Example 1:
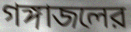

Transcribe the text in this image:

গঙ্গাজলের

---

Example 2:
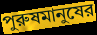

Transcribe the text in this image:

পুরুষমানুষের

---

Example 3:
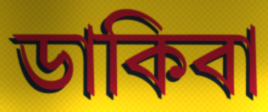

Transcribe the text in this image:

ডাকিবা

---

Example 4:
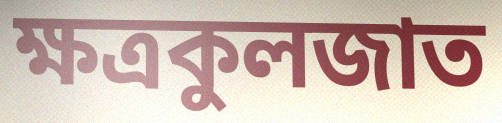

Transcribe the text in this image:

ক্ষত্রকুলজাত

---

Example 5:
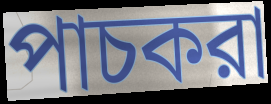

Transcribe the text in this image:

পাচকরা